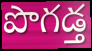
పొగడ్త